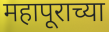
महापूराच्या